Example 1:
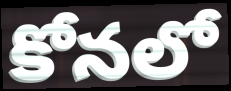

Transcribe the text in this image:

కోనలో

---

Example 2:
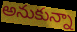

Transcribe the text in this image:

అనుకున్నా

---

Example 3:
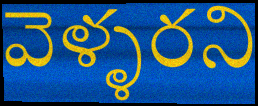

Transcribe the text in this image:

వెళ్ళరని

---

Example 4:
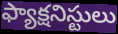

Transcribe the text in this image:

ఫ్యాక్షనిస్టులు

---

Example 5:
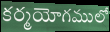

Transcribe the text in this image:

కర్మయోగములో